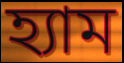
হ্যাম